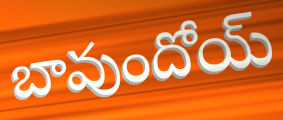
బావుందోయ్